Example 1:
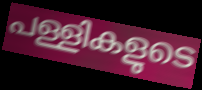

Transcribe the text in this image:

പള്ളികളുടെ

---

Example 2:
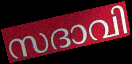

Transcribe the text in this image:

സദാവി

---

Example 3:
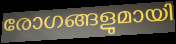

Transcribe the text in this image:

രോഗങ്ങളുമായി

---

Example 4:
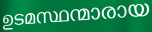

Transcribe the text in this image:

ഉടമസ്ഥന്മാരായ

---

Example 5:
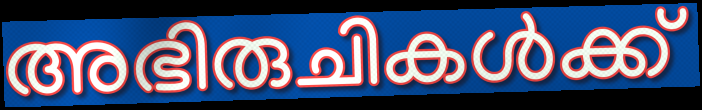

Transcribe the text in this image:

അഭിരുചികൾക്ക്